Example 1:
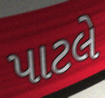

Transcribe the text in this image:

પાટલે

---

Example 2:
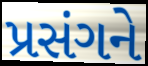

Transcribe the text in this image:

પ્રસંગને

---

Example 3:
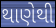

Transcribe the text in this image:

થાણેથી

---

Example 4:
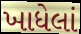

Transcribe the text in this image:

ખાધેલાં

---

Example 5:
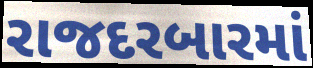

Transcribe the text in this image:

રાજદરબારમાં